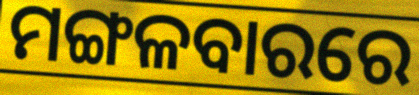
ମଙ୍ଗଳବାରରେ